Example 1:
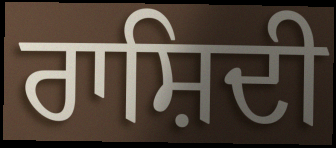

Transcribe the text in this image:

ਰਾਸ਼ਿਦੀ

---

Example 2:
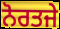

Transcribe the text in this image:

ਨੋਰਤਜੇ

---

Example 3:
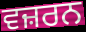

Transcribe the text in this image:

ਵਜ਼ਰਨ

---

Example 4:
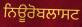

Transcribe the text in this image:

ਨਿਊਰੋਬਲਾਸਟ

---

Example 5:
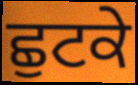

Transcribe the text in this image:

ਛੁਟਕੇ